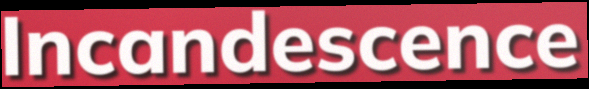
Incandescence